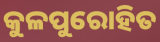
କୁଳପୁରୋହିତ